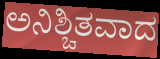
ಅನಿಶ್ಚಿತವಾದ